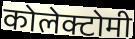
कोलेक्टोमी